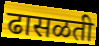
ढासळती